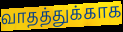
வாதத்துக்காக